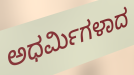
ಅಧರ್ಮಿಗಳಾದ